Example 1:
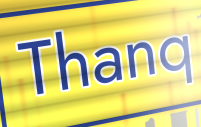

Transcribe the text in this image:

Thanq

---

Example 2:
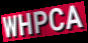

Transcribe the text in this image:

WHPCA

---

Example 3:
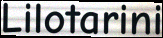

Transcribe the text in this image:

Lilotarini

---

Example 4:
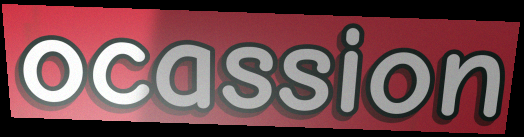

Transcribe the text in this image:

ocassion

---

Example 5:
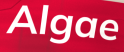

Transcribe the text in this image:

Algae